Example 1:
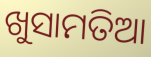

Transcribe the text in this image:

ଖୁସାମତିଆ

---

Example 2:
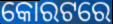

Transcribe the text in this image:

କୋରଟରେ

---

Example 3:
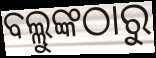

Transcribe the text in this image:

ବଲ୍ଲୁଙ୍କଠାରୁ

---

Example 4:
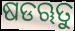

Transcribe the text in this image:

ଷଡୠତୁ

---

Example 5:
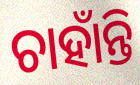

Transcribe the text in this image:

ଚାହାଁନ୍ତି